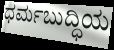
ಧರ್ಮಬುದ್ಧಿಯ